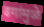
ढगांमुळे